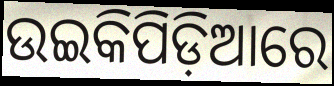
ଉଇକିପିଡ଼ିଆରେ